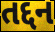
તદ્દન